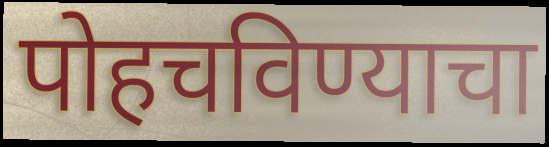
पोहचविण्याचा